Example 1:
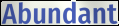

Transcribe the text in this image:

Abundant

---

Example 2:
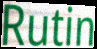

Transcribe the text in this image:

Rutin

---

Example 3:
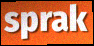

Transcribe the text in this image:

sprak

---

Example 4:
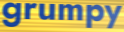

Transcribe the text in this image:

grumpy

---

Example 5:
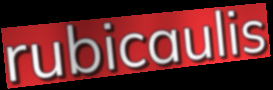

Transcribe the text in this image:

rubicaulis